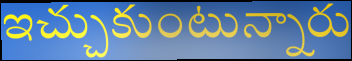
ఇచ్చుకుంటున్నారు